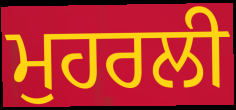
ਮੁਹਰਲੀ